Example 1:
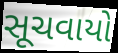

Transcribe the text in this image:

સૂચવાયો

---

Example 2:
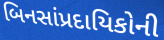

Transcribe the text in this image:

બિનસાંપ્રદાયિકોની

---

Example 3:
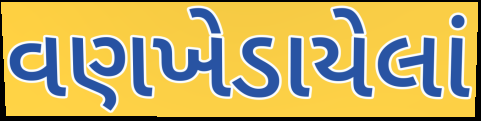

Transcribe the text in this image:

વણખેડાયેલાં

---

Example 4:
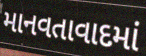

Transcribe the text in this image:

માનવતાવાદમાં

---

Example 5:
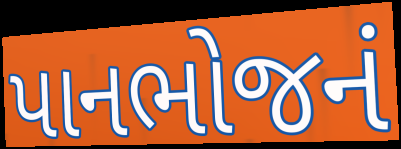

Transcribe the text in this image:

પાનભોજનં